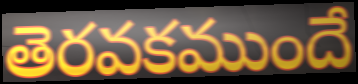
తెరవకముందే